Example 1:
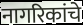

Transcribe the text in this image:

नागरिकांचे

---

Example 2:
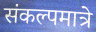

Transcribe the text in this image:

संकल्पमात्रे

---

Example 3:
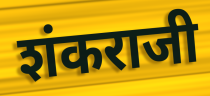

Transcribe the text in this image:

शंकराजी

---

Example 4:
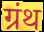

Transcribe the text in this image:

ग्रंथ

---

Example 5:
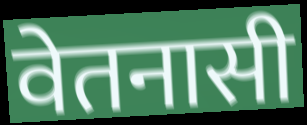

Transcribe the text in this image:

वेतनासी